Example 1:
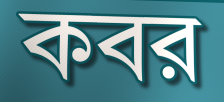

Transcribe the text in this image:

কবর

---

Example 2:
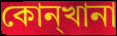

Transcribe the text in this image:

কোন্খানা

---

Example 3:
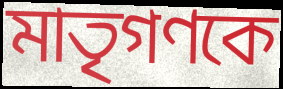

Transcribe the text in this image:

মাতৃগণকে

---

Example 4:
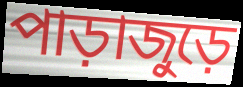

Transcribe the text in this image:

পাড়াজুড়ে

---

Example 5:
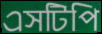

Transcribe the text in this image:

এসটিপি